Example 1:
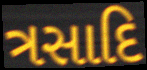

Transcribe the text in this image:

ત્રસાદિ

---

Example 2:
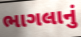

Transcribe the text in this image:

ભાગલાનું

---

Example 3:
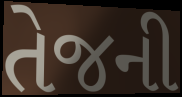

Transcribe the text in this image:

તેજની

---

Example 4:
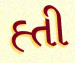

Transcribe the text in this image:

હ્તી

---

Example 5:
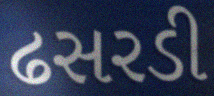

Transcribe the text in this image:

ઢસરડી